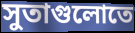
সুতাগুলোতে